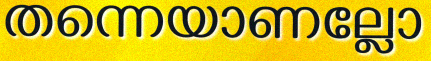
തന്നെയാണല്ലോ